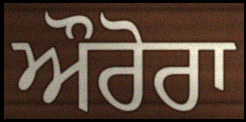
ਔਰੋਰਾ